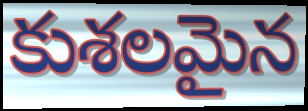
కుశలమైన